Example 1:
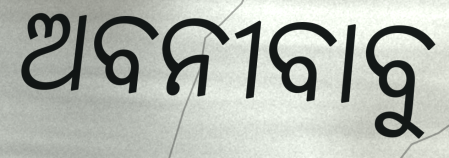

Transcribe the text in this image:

ଅବନୀବାବୁ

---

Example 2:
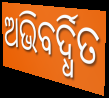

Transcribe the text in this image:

ଅଭିବର୍ଦ୍ଧିତ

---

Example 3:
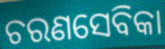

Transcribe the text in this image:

ଚରଣସେବିକା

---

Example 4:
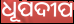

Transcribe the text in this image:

ଧୂପଦୀପ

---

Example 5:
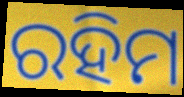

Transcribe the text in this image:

ରହିମ